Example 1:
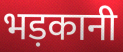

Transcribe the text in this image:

भड़कानी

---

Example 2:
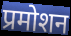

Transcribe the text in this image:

प्रमोशन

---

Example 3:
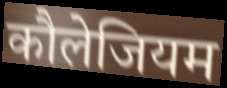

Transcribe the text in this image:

कौलेजियम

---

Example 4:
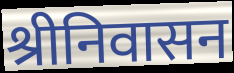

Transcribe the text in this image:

श्रीनिवासन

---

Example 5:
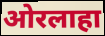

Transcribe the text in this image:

ओरलाहा